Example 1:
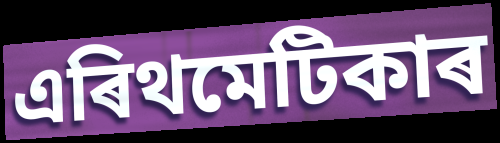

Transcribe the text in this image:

এৰিথমেটিকাৰ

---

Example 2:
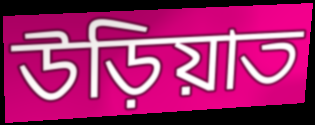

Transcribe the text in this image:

উড়িয়াত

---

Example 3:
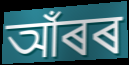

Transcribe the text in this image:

আঁৰৰ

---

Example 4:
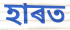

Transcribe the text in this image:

হাৰত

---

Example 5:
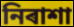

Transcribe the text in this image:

নিৰাশা